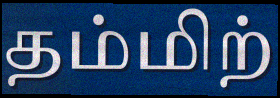
தம்மிற்